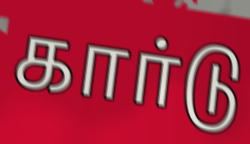
கார்டு